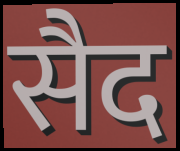
सैद